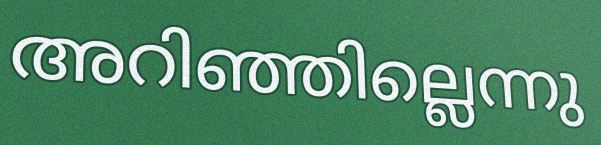
അറിഞ്ഞില്ലെന്നു